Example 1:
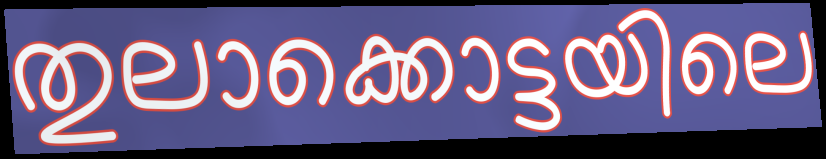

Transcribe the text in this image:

തുലാക്കൊട്ടയിലെ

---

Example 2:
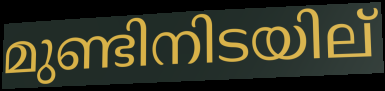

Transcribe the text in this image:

മുണ്ടിനിടയില്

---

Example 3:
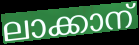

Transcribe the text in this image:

ലാക്കാന്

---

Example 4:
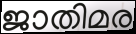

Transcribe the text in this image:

ജാതിമര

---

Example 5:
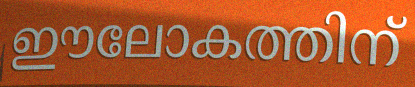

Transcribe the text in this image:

ഈലോകത്തിന്